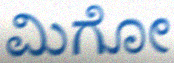
ಮಿಗೋ